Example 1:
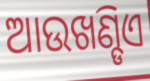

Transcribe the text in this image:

ଆଉଖଣ୍ଡିଏ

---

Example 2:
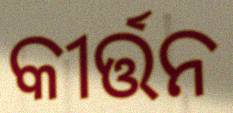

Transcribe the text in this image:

କୀର୍ତ୍ତନ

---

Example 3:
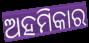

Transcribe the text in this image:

ଅହମିକାର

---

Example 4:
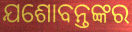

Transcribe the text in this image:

ଯଶୋବନ୍ତଙ୍କର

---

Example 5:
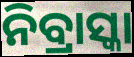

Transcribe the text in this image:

ନିବ୍ରାସ୍କା